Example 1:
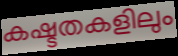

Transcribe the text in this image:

കഷ്ടതകളിലും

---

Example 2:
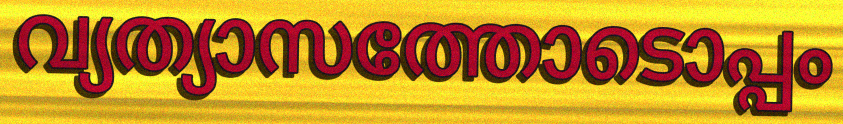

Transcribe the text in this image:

വ്യത്യാസത്തോടൊപ്പം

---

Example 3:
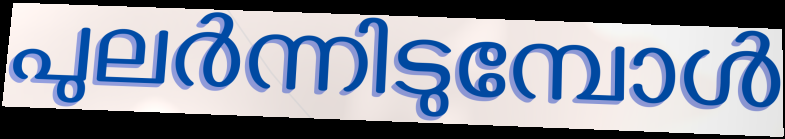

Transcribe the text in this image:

പുലർന്നിടുമ്പോൾ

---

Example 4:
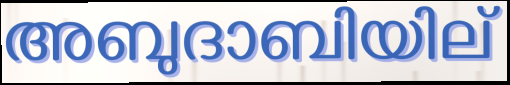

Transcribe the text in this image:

അബുദാബിയില്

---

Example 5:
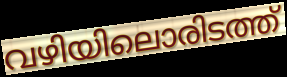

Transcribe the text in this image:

വഴിയിലൊരിടത്ത്